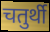
चतुर्थी